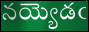
నయ్యెడఁ